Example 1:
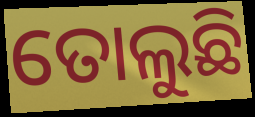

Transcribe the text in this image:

ତୋଲୁଛି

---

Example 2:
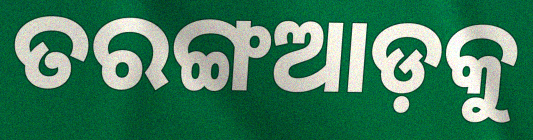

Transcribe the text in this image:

ତରଙ୍ଗଆଡ଼କୁ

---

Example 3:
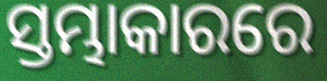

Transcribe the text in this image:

ସ୍ତମ୍ଭାକାରରେ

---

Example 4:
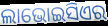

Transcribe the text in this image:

ଲାଭୋଇସିଏର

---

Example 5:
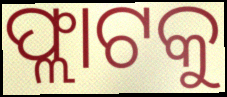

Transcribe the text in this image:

ଫ୍ଲାଟକୁ